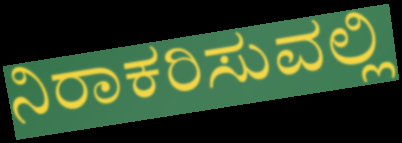
ನಿರಾಕರಿಸುವಲ್ಲಿ